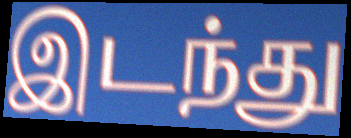
இடந்து